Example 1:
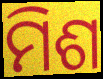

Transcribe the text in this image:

ମିଶ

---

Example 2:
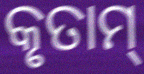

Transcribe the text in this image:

କୃତାମ୍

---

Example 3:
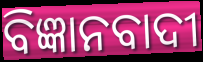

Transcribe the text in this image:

ବିଜ୍ଞାନବାଦୀ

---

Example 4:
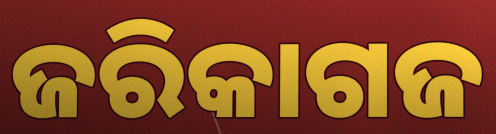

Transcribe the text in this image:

ଜରିକାଗଜ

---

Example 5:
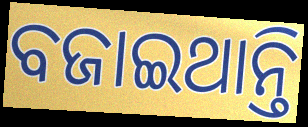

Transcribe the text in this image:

ବଜାଇଥାନ୍ତି